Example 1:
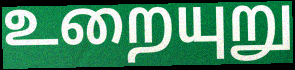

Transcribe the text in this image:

உறையுறு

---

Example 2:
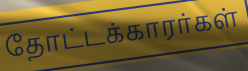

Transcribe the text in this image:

தோட்டக்காரர்கள்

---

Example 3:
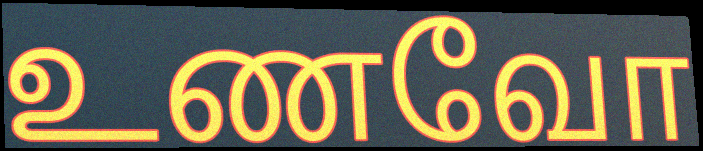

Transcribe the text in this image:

உணவோ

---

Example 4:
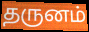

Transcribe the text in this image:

தருனம்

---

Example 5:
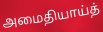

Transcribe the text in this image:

அமைதியாய்த்